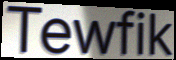
Tewfik